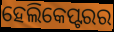
ହେଲିକେପ୍ଟରର